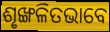
ଶୃଙ୍ଖଳିତଭାବେ